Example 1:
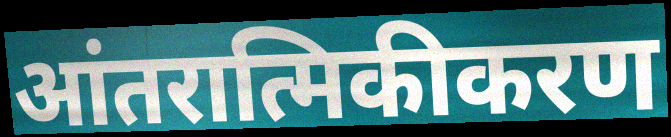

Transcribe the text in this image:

आंतरात्मिकीकरण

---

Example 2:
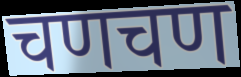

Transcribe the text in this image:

चणचण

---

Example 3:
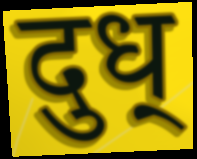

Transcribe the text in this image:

दुध्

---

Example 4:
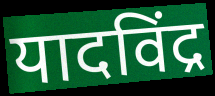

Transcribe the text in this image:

यादविंद्र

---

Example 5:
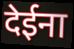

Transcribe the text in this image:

देईना